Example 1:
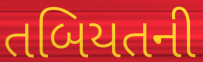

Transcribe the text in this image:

તબિયતની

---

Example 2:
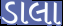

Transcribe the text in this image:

ડાલા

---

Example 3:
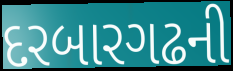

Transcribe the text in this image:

દરબારગઢની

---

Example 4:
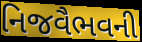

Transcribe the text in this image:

નિજવૈભવની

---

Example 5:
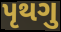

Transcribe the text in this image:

પૃથગુ